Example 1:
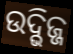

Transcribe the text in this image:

ଉଦ୍ଭିଜ୍ଜ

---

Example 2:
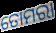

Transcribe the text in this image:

ତୋମରା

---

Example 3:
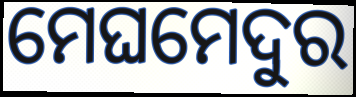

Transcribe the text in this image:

ମେଘମେଦୁର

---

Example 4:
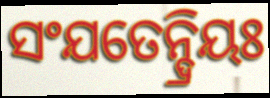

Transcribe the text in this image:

ସଂଯତେନ୍ଦ୍ରିୟଃ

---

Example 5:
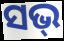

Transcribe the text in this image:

ସଭ୍